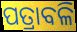
ପତ୍ରାବଳି